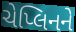
ચેપ્લિનને